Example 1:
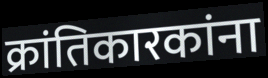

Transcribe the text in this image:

क्रांतिकारकांना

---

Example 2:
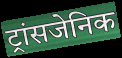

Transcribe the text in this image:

ट्रांसजेनिक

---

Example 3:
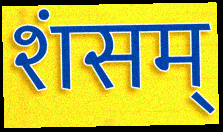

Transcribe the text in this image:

शंसम्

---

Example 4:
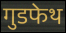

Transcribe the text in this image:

गुडफेथ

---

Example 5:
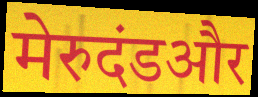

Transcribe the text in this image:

मेरुदंडऔर